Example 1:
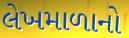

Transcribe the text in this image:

લેખમાળાનો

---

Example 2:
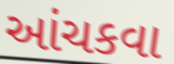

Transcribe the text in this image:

આંચકવા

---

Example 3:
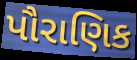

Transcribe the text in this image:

પૌરાણિક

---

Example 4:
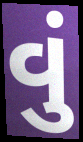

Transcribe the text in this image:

વું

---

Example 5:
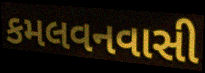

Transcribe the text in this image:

કમલવનવાસી